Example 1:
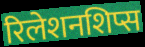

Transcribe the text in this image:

रिलेशनशिप्स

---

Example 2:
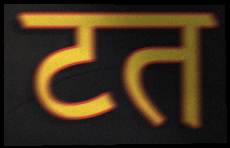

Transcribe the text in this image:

टत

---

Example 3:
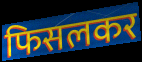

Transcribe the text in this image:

फिसलकर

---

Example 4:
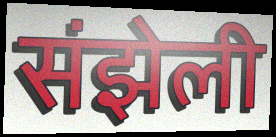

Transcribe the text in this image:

संझेली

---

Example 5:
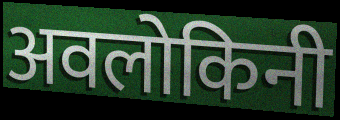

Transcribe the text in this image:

अवलोकिनी